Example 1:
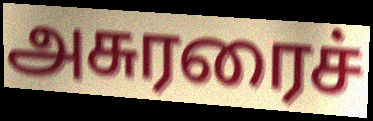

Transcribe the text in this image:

அசுரரைச்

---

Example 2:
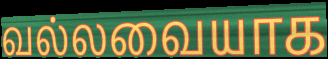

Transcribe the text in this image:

வல்லவையாக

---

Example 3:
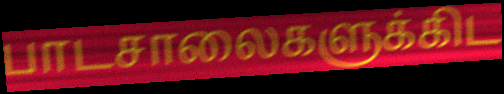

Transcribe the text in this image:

பாடசாலைகளுக்கிட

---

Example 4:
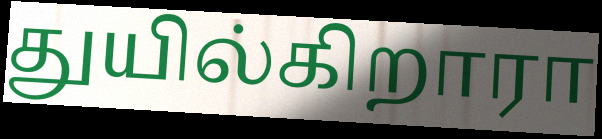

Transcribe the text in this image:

துயில்கிறாரா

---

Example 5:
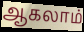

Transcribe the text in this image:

ஆகலாம்